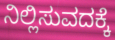
ನಿಲ್ಲಿಸುವದಕ್ಕೆ